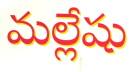
మల్లేషు